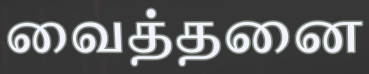
வைத்தனை